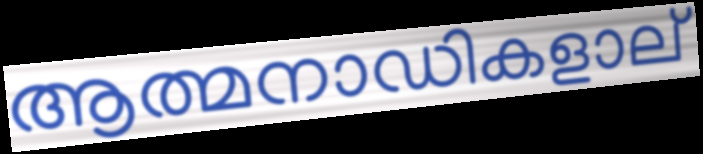
ആത്മനാഡികളാല്